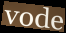
vode